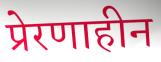
प्रेरणाहीन